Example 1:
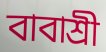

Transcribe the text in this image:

বাবাশ্রী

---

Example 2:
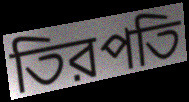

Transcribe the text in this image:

তিরপতি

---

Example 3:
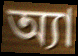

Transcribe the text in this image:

অ্যা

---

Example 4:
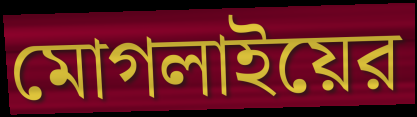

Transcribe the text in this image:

মোগলাইয়ের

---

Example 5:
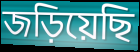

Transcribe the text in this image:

জড়িয়েছি